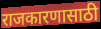
राजकारणासाठी